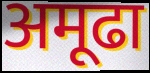
अमूढा